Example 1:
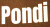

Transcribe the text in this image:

Pondi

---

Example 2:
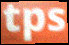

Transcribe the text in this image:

tps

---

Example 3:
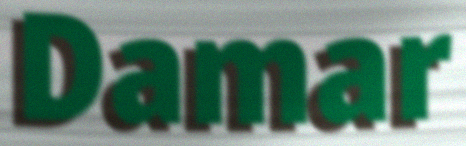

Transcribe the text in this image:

Damar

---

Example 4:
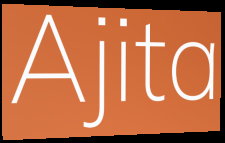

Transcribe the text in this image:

Ajita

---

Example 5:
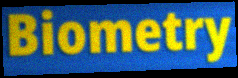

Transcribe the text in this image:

Biometry